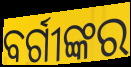
ବର୍ଗୀଙ୍କର